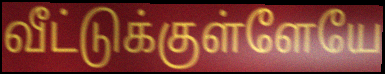
வீட்டுக்குள்ளேயே